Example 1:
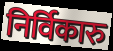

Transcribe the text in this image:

निर्विकारु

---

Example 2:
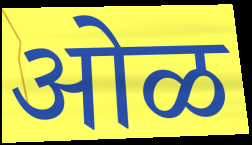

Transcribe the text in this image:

ओळ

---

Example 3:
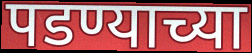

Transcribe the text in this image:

पडण्याच्या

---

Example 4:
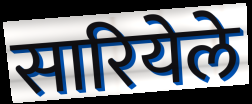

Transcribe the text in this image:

सारियेले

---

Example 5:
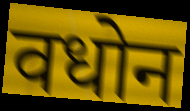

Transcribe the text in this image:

वधोन